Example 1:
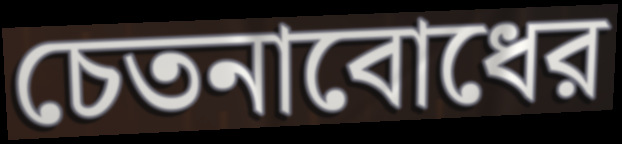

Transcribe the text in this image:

চেতনাবোধের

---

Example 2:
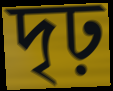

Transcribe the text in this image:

দৃঢ়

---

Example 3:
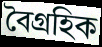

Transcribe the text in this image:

বৈগ্রহিক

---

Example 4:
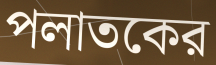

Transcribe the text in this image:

পলাতকের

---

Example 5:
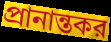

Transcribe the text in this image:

প্রানান্তকর